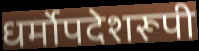
धर्मोपदेशरूपी